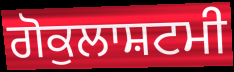
ਗੋਕੁਲਾਸ਼ਟਮੀ